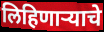
लिहिणाऱ्याचे